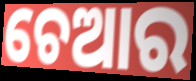
ଚେଆର